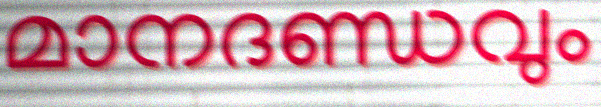
മാനദണ്ഡവും